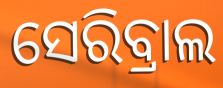
ସେରିବ୍ରାଲ